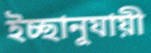
ইচ্ছানুযায়ী